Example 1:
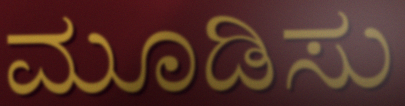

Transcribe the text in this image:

ಮೂಡಿಸು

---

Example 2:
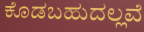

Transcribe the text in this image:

ಕೊಡಬಹುದಲ್ಲವೆ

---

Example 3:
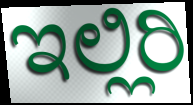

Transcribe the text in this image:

ಇಲ್ಲಿರಿ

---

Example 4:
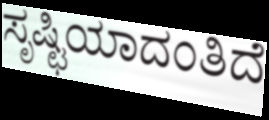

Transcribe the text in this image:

ಸೃಷ್ಟಿಯಾದಂತಿದೆ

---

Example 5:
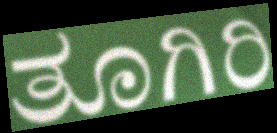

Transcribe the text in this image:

ತೂಗಿರಿ